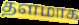
தளமாக